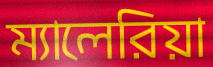
ম্যালেরিয়া